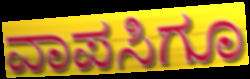
ವಾಪಸಿಗೂ